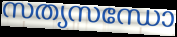
സത്യസന്ധോ